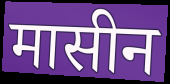
मासीन